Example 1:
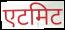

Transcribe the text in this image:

एटमिट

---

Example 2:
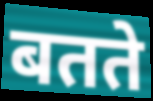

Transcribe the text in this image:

बतते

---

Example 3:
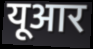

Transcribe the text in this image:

यूआर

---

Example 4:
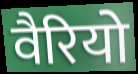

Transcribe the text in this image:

वैरियो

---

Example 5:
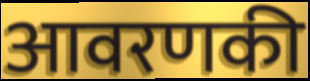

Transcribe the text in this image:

आवरणकी